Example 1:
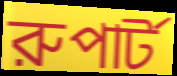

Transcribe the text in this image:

রুপার্ট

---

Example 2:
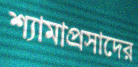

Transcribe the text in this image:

শ্যামাপ্রসাদের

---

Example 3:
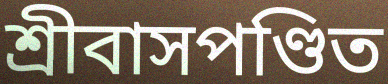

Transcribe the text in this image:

শ্রীবাসপণ্ডিত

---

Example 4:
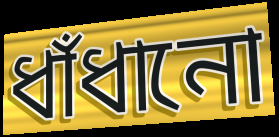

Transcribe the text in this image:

ধাঁধানো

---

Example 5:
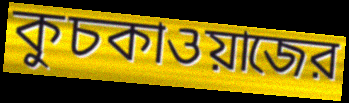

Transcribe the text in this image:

কুচকাওয়াজের